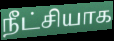
நீட்சியாக